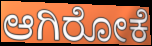
ಆಗಿರೋಕೆ